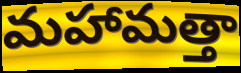
మహామత్తా